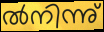
ൽനിന്നു്